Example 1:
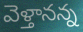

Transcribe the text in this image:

వెళ్తానన్న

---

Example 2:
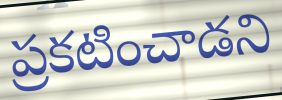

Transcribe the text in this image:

ప్రకటించాడని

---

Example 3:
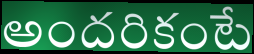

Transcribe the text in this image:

అందరికంటే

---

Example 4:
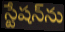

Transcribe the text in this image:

స్టేషన్‌ను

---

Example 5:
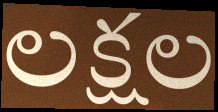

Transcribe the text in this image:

లక్షల